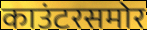
काउंटरसमोर